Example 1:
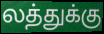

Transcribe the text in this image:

லத்துக்கு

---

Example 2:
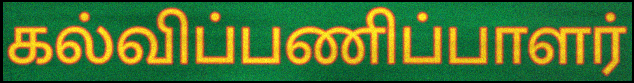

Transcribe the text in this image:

கல்விப்பணிப்பாளர்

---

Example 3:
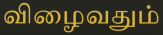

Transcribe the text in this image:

விழைவதும்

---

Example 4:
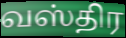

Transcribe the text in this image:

வஸ்திர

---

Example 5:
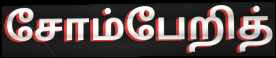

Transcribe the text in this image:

சோம்பேறித்